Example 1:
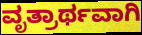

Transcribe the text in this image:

ವೃತ್ರಾರ್ಥವಾಗಿ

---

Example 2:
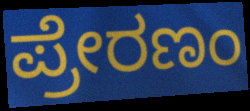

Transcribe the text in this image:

ಪ್ರೇರಣಂ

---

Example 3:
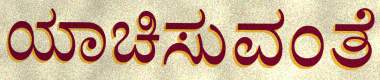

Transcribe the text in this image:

ಯಾಚಿಸುವಂತೆ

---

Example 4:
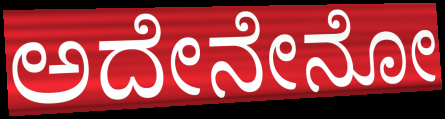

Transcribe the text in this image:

ಅದೇನೇನೋ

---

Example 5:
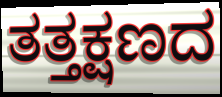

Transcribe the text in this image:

ತತ್ತಕ್ಷಣದ